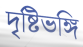
দৃষ্টিভঙ্গি